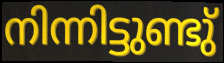
നിന്നിട്ടുണ്ടു്